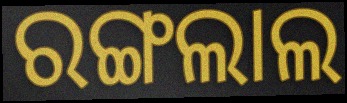
ରଙ୍ଗଲାଲ